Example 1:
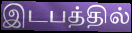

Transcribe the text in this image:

இடபத்தில்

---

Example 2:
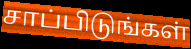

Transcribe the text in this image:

சாப்பிடுங்கள்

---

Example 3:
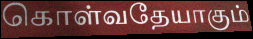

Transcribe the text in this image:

கொள்வதேயாகும்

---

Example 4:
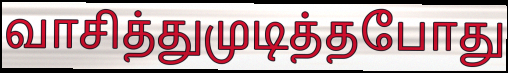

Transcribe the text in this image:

வாசித்துமுடித்தபோது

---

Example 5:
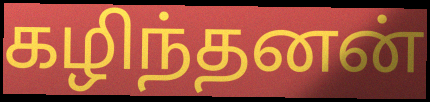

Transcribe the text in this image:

கழிந்தனன்